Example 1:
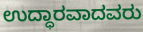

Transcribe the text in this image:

ಉದ್ಧಾರವಾದವರು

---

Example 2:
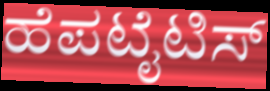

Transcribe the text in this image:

ಹೆಪಟೈಟಿಸ್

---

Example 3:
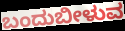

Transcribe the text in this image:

ಬಂದುಬೀಳುವ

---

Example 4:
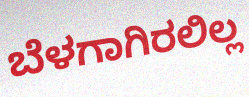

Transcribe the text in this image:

ಬೆಳಗಾಗಿರಲಿಲ್ಲ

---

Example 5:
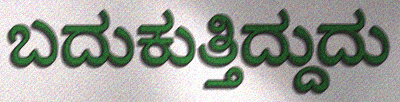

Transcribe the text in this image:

ಬದುಕುತ್ತಿದ್ದುದು